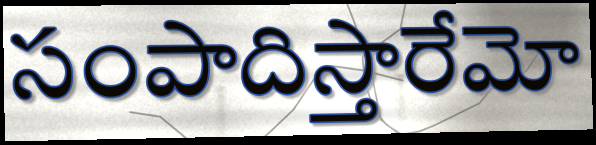
సంపాదిస్తారేమో